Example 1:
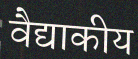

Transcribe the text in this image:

वैद्याकीय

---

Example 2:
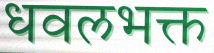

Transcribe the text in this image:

धवलभक्त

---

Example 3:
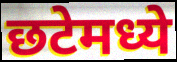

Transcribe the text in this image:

छटेमध्ये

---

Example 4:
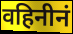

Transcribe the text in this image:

वहिनीनं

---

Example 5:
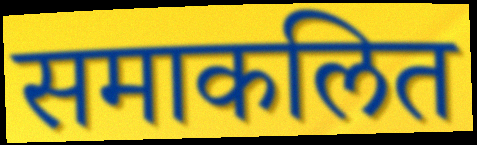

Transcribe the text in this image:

समाकलित